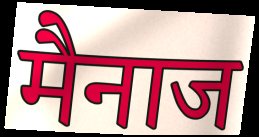
मैनाज